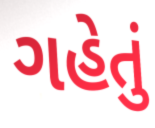
ગહેતું